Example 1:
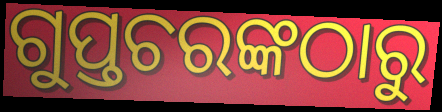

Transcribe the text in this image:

ଗୁପ୍ତଚରଙ୍କଠାରୁ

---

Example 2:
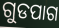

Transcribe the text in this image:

ଗୁଡପାଗ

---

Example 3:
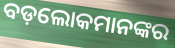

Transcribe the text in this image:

ବଡ଼ଲୋକମାନଙ୍କର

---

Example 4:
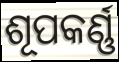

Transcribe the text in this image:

ଶୂପକର୍ଣ୍ଣ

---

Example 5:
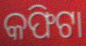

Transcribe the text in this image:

କଫିଟା